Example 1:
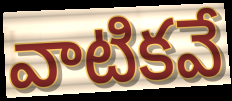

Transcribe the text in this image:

వాటికవే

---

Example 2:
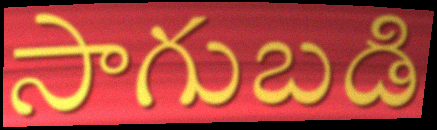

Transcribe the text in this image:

సాగుబడి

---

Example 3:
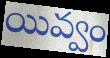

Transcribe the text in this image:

యివ్వం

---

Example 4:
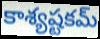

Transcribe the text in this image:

కాశ్యష్టకమ్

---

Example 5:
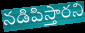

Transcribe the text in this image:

నడిపిస్తారని